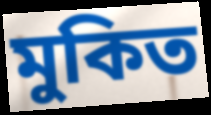
মুকিত